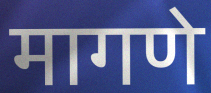
मागणे